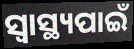
ସ୍ଵାସ୍ଥ୍ୟପାଇଁ